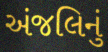
અંજલિનું